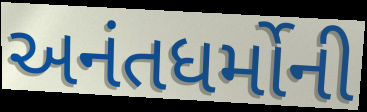
અનંતધર્મોની